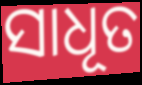
ସାଧୂତ